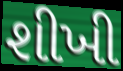
શીખી